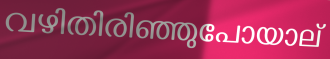
വഴിതിരിഞ്ഞുപോയാല്